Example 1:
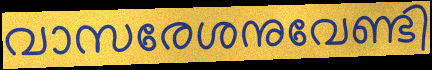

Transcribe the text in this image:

വാസരേശനുവേണ്ടി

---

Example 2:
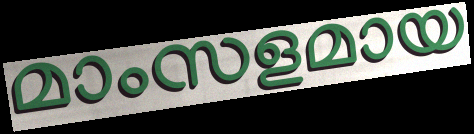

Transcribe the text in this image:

മാംസളമായ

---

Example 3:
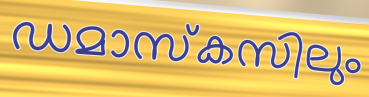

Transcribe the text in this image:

ഡമാസ്കസിലും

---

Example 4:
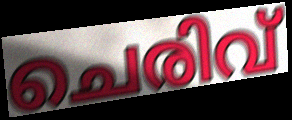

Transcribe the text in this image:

ചെരിവ്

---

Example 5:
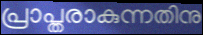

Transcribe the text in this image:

പ്രാപ്തരാകുന്നതിനു